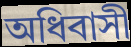
অধিবাসী